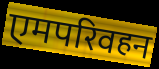
एमपरिवहन